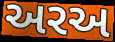
અરઅ